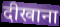
दीखाना